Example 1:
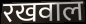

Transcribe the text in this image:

रखवाल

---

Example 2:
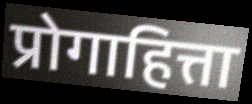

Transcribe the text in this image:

प्रोगाहित्ता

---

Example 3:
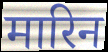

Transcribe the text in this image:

मारिन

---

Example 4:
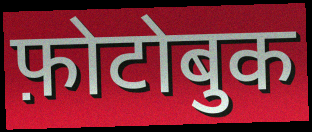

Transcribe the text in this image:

फ़ोटोबुक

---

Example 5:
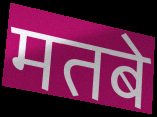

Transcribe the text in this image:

मतबे